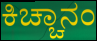
ಕಿಚ್ಚಾನಂ